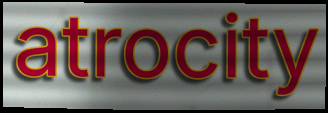
atrocity